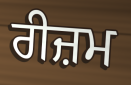
ਰੀਜ਼ਮ